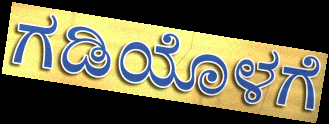
ಗಡಿಯೊಳಗೆ